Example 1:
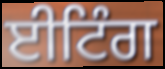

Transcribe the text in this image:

ਈਟਿੰਗ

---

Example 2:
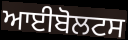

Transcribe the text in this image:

ਆਈਬੋਲਟਸ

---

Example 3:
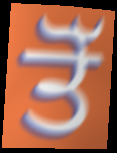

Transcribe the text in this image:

ਤੋੱ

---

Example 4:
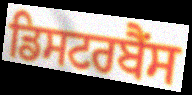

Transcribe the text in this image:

ਡਿਸਟਰਬੈਂਸ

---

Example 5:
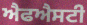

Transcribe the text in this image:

ਐਫਐਸਟੀ